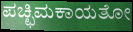
ಪಚ್ಛಿಮಕಾಯತೋ